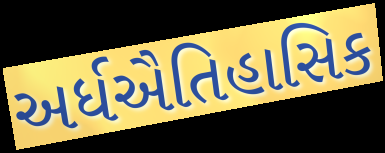
અર્ધઐતિહાસિક